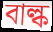
বাল্ক